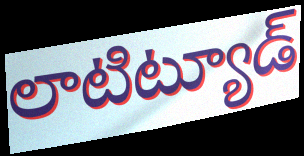
లాటిట్యూడ్